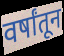
वर्षांतून